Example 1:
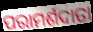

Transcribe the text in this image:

ପରାମର୍ଶଦାତା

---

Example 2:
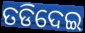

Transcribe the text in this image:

ତଡିଦେଇ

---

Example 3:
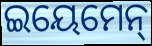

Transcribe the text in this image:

ଇୟେମେନ୍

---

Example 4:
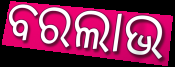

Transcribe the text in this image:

ବରଲାଭ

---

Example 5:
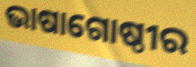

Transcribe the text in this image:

ଭାଷାଗୋଷ୍ଠୀର